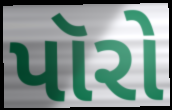
પૉરો